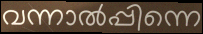
വന്നാൽപ്പിന്നെ